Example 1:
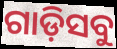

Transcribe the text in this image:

ଗାଡ଼ିସବୁ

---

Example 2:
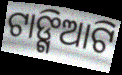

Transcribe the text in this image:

ଟାଙ୍ଗିଆଟି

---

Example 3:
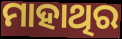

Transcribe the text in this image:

ମାହାଥିର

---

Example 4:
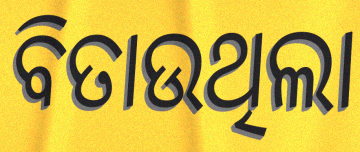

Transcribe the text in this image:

ବିତାଉଥିଲା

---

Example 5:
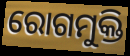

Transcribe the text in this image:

ରୋଗମୁକ୍ତି